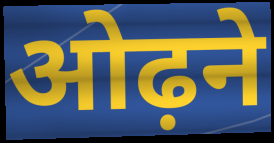
ओढ़ने